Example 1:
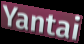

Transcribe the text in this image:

Yantai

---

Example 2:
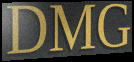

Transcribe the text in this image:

DMG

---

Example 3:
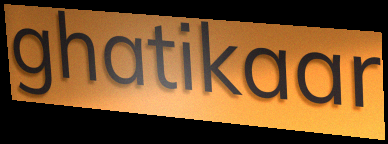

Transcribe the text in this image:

ghatikaar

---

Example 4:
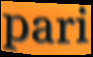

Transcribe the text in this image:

pari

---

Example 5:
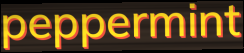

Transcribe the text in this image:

peppermint